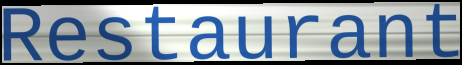
Restaurant